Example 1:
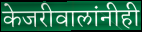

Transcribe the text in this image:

केजरीवालांनीही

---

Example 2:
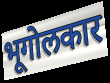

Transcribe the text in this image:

भूगोलकार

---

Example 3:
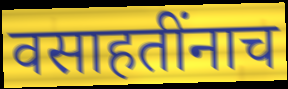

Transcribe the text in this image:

वसाहतींनाच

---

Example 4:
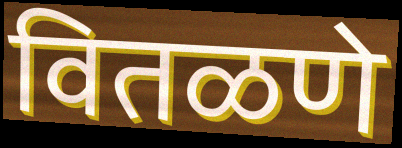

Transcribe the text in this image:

वितळणे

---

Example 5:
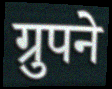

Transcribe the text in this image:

ग्रुपने